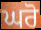
ਘਰੋ